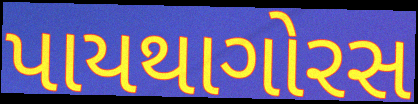
પાયથાગોરસ